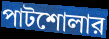
পাটশোলার